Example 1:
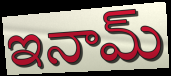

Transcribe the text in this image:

ఇనామ్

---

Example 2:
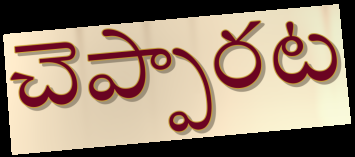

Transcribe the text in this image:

చెప్పారట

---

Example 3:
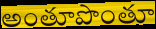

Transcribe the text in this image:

అంతూపొంతూ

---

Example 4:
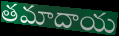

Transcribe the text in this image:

తమాదాయ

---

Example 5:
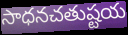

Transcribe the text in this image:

సాధనచతుష్టయ